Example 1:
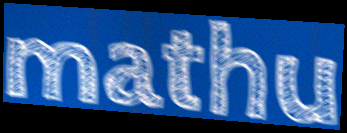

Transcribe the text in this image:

mathu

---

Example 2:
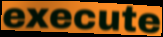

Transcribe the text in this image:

execute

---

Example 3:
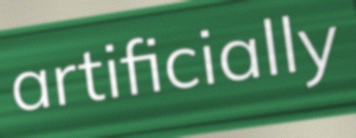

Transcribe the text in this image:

artificially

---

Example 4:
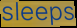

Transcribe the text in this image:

sleeps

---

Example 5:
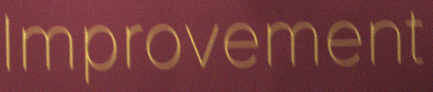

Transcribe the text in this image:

Improvement